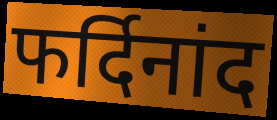
फर्दिनांद